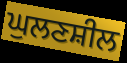
ਘੁਲਣਸ਼ੀਲ